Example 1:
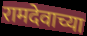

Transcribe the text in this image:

रामदेवाच्या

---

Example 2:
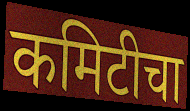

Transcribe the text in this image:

कमिटीचा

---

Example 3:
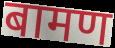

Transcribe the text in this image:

बामण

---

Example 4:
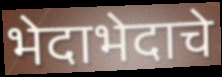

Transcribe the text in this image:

भेदाभेदाचे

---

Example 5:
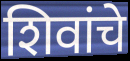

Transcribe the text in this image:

शिवांचे